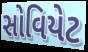
સોવિયેટ